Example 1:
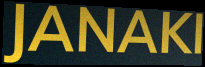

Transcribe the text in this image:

JANAKI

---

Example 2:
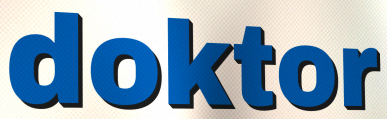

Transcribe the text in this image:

doktor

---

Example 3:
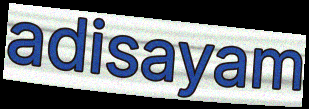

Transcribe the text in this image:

adisayam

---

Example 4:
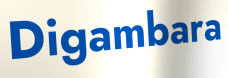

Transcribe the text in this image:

Digambara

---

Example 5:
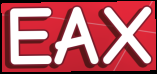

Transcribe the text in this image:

EAX